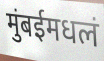
मुंबईमधलं